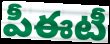
పీఈటీ